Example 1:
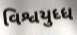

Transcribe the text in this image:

વિશ્વયુધ્ધ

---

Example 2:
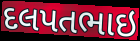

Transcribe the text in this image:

દલપતભાઇ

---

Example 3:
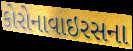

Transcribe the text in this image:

કોરોનાવાઇરસના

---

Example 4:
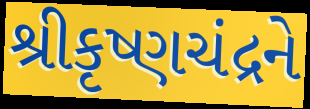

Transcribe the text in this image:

શ્રીકૃષ્ણચંદ્રને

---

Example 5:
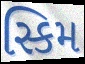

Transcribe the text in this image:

સ્કિમ